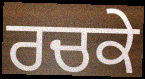
ਰਚਕੇ